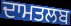
ਦਾਮਤਲਬ